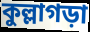
কুল্লাগড়া